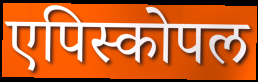
एपिस्कोपल